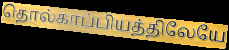
தொல்காப்பியத்திலேயே